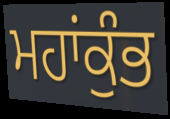
ਮਹਾਂਕੁੰਭ